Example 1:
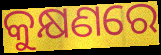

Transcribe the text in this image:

କୁକ୍ଷଣରେ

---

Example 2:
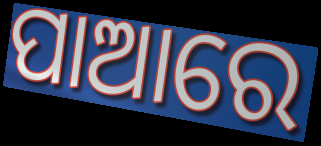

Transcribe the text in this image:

ପାଆରେ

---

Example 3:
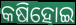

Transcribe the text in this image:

କଷିହୋଇ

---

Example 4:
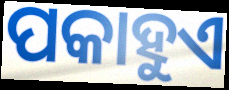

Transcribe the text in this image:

ପକାହୁଏ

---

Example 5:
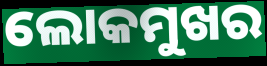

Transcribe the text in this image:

ଲୋକମୁଖର